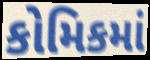
કોમિકમાં